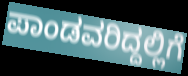
ಪಾಂಡವರಿದ್ದಲ್ಲಿಗೆ